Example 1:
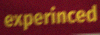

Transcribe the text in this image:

experinced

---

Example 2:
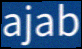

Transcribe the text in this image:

ajab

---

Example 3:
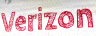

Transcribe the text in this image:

Verizon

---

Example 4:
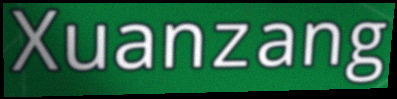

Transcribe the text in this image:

Xuanzang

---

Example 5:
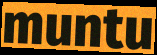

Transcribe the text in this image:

muntu